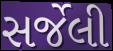
સર્જેલી